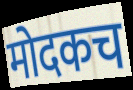
मोदकच